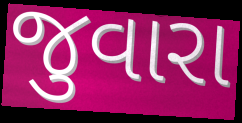
જુવારા